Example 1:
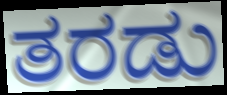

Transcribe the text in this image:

ತರಡು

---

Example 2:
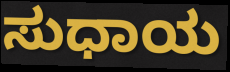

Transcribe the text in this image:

ಸುಧಾಯ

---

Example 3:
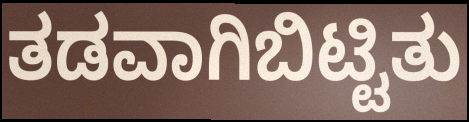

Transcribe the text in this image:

ತಡವಾಗಿಬಿಟ್ಟಿತು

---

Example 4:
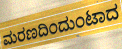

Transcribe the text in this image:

ಮರಣದಿಂದುಂಟಾದ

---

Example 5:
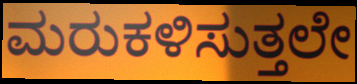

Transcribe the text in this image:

ಮರುಕಳಿಸುತ್ತಲೇ